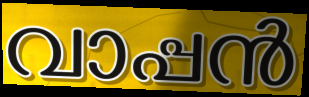
വാപ്പൻ